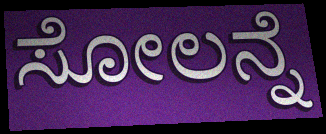
ಸೋಲನ್ನೆ